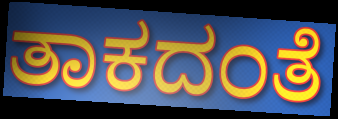
ತಾಕದಂತೆ